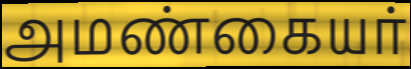
அமண்கையர்